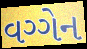
વગ્ગેન